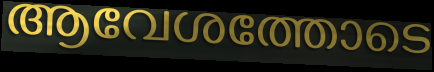
ആവേശത്തോടെ